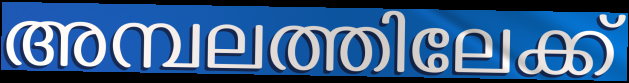
അമ്പലത്തിലേക്ക്